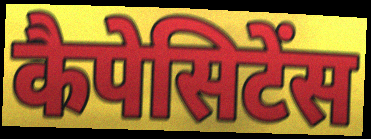
कैपेसिटेंस